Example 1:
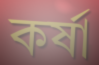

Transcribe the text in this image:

কর্ষা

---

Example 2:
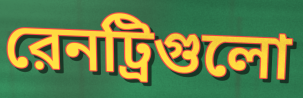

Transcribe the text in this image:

রেনট্রিগুলো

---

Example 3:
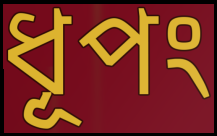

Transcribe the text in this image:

ধূপং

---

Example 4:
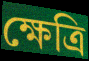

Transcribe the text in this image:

ক্ষেত্রি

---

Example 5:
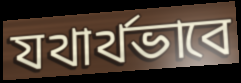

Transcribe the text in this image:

যথার্থভাবে